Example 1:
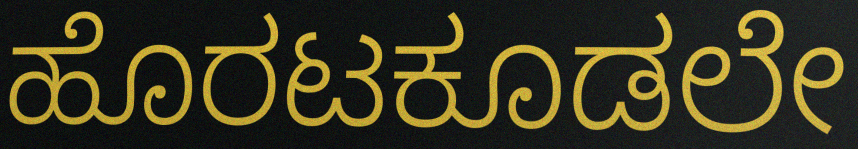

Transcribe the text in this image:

ಹೊರಟಕೂಡಲೇ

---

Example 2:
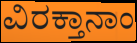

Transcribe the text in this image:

ವಿರಕ್ತಾನಾಂ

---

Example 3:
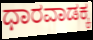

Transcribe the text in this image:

ಧಾರವಾಡಕ್ಕ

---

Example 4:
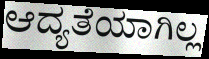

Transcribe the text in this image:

ಆದ್ಯತೆಯಾಗಿಲ್ಲ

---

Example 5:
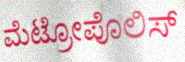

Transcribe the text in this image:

ಮೆಟ್ರೋಪೊಲಿಸ್